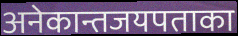
अनेकान्तजयपताका